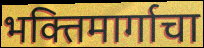
भक्तिमार्गाचा